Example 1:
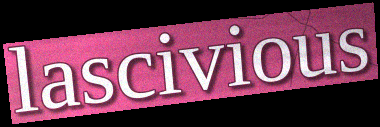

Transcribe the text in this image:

lascivious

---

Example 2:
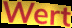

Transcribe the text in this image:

Wert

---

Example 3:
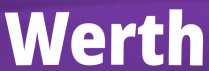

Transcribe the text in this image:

Werth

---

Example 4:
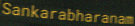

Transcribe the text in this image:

Sankarabharanam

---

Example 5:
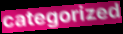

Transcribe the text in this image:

categorized